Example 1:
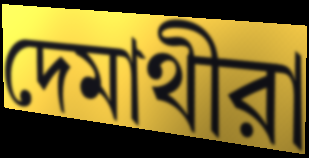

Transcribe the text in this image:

দেমাথীরা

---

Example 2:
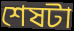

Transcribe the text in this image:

শেষটা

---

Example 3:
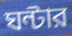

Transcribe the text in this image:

ঘন্টার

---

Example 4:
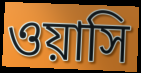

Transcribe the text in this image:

ওয়াসি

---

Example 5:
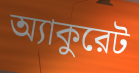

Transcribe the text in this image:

অ্যাকুরেট